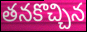
తనకొచ్చిన